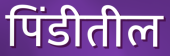
पिंडीतील